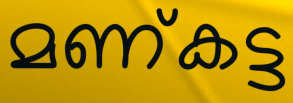
മണ്കട്ട